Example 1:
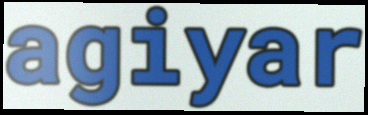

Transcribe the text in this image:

agiyar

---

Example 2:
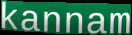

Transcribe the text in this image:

kannam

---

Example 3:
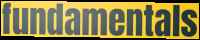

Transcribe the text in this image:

fundamentals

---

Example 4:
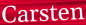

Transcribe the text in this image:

Carsten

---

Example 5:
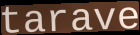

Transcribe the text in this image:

tarave